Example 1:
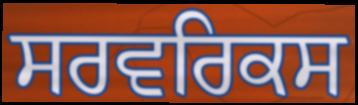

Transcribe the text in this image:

ਸਰਵਰਿਕਸ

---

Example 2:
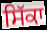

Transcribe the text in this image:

ਸਿੱਕਾ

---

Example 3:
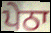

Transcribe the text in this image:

ਪੇਠਾ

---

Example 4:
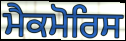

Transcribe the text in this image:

ਮੈਕਮੋਰਿਸ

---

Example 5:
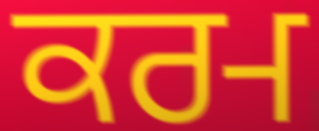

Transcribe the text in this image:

ਕਰ੍ਮ